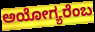
ಅಯೋಗ್ಯರೆಂಬ